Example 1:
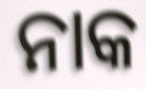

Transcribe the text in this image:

ନାକ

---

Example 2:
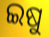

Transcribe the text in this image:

ଇଷୁ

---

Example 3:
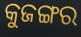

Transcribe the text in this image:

କୁଜଙ୍ଗର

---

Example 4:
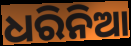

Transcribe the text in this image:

ଧରିନିଆ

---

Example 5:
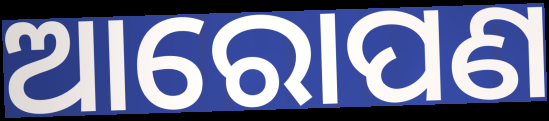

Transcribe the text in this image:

ଆରୋପଣ